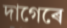
দাগেৰে